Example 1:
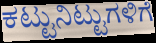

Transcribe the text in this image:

ಕಟ್ಟುನಿಟ್ಟುಗಳಿಗೆ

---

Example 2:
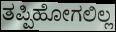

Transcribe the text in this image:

ತಪ್ಪಿಹೋಗಲಿಲ್ಲ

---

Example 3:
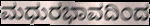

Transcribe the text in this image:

ಮಧುರಭಾವದಿಂದ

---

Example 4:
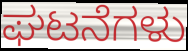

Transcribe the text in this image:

ಘಟನೆಗಳು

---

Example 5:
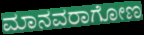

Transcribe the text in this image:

ಮಾನವರಾಗೋಣ